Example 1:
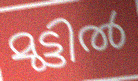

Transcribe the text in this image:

മുട്ടിൽ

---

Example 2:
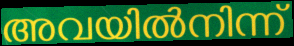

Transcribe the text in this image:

അവയിൽനിന്ന്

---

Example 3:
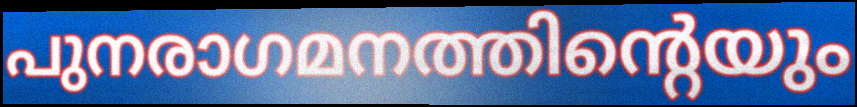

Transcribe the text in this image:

പുനരാഗമനത്തിന്റെയും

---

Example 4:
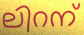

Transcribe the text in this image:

ലിറന്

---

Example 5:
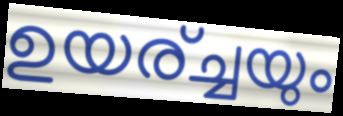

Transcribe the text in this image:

ഉയര്ച്ചയും